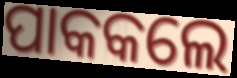
ପାକକଲେ